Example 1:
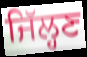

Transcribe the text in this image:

ਜਿੱਲ੍ਹਣ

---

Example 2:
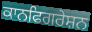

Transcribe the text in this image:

ਕਾਨਫਿਗਰੇਸ਼ਨ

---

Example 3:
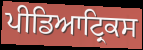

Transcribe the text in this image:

ਪੀਡਿਆਟ੍ਰਿਕਸ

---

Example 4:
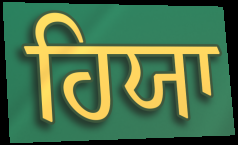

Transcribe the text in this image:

ਹਿਯਾ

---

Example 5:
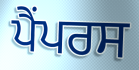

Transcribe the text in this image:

ਪੈਂਪਰਸ